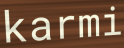
karmi